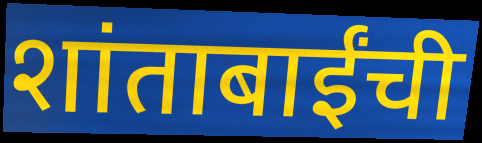
शांताबाईंची